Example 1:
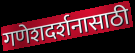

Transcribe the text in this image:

गणेशदर्शनासाठी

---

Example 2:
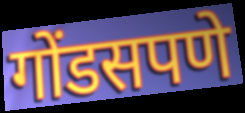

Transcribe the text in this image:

गोंडसपणे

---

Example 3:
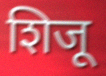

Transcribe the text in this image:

शिजू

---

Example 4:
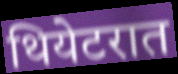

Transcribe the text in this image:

थियेटरात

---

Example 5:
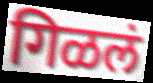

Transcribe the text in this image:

गिळलं